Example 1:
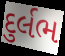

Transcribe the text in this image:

દુર્લભ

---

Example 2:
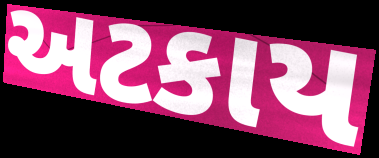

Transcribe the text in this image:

અટકાય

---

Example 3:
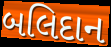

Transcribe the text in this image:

બલિદાન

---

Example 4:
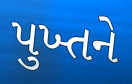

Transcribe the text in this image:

પુખ્તને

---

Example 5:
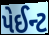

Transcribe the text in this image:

પેઈન્ટ